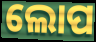
ଲୋପ